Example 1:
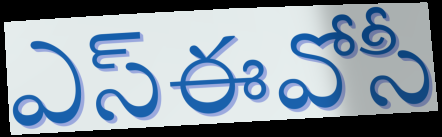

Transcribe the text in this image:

ఎస్ఈవోసీ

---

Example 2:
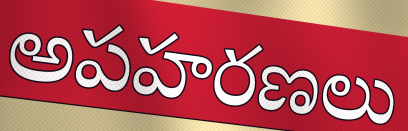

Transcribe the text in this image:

అపహరణలు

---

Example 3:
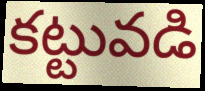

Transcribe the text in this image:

కట్టువడి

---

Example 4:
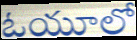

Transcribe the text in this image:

ఓయూలో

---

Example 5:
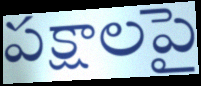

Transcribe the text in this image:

పక్షాలపై